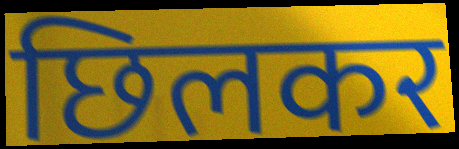
छिलकर